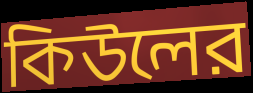
কিউলের